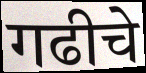
गढीचे